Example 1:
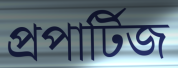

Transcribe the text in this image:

প্রপার্টিজ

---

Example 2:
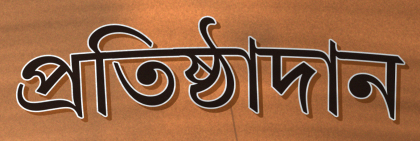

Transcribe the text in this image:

প্রতিষ্ঠাদান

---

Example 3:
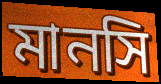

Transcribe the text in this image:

মানসি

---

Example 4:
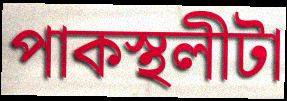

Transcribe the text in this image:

পাকস্থলীটা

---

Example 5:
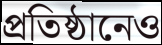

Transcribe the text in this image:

প্রতিষ্ঠানেও